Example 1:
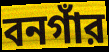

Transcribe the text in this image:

বনগাঁর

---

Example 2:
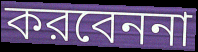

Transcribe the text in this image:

করবেননা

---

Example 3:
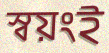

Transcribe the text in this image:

স্বয়ংই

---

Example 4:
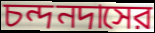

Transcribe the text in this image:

চন্দনদাসের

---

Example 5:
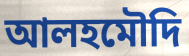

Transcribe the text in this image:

আলহমৌদি